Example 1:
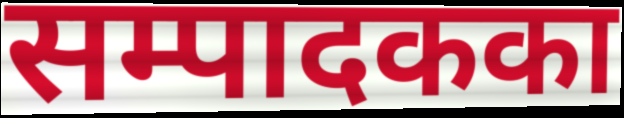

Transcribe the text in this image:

सम्पादकका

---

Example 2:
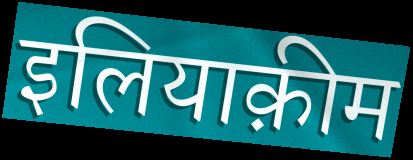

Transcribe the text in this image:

इलियाक़ीम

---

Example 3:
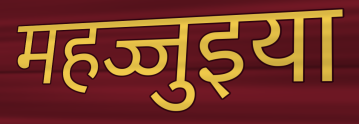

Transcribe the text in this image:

महज्जुइया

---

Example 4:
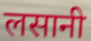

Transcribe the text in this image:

लसानी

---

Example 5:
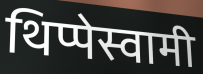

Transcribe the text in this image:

थिप्पेस्वामी